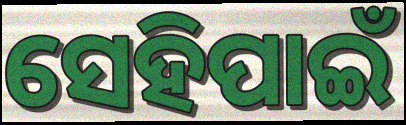
ସେହିପାଇଁ